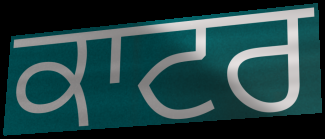
ਕਾਟਰ